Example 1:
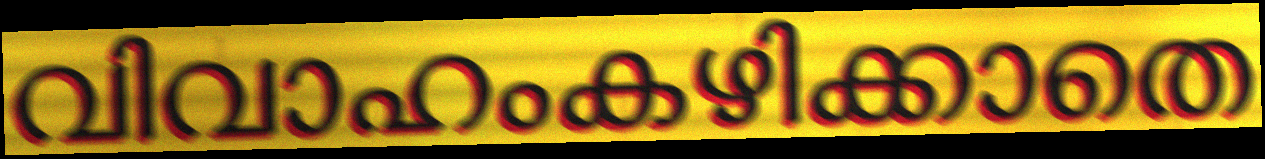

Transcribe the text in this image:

വിവാഹംകഴിക്കാതെ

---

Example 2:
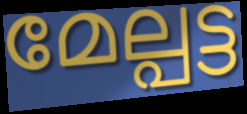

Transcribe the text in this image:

മേല്പട്ട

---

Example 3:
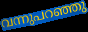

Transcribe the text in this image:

വന്നുപറഞ്ഞു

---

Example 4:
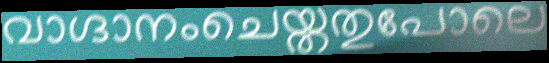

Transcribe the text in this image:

വാഗ്ദാനംചെയ്തതുപോലെ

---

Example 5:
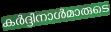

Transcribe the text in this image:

കർദ്ദിനാൾമാരുടെ